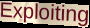
Exploiting